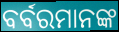
ବର୍ବରମାନଙ୍କ